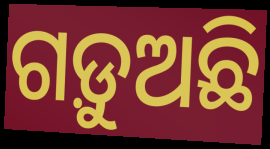
ଗଡ଼ୁଅଛି